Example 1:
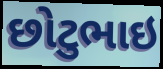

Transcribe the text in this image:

છોટુભાઇ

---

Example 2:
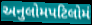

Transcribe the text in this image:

અનુલોમપટિલોમં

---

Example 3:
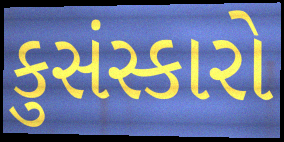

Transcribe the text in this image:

કુસંસ્કારો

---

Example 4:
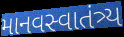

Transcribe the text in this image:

માનવસ્વાતંત્ર્ય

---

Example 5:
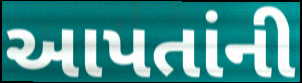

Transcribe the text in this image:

આપતાંની